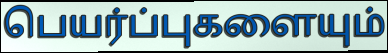
பெயர்ப்புகளையும்